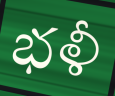
భళీ